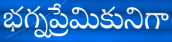
భగ్నప్రేమికునిగా